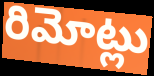
రిమోట్లు